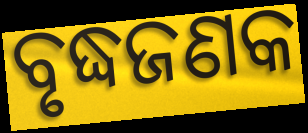
ବୃଦ୍ଧଜଣକ